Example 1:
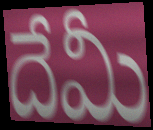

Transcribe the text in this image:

దేమీ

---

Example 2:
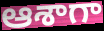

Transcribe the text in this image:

ఆశాగా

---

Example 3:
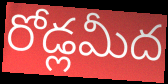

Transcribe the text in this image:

రోడ్లమీద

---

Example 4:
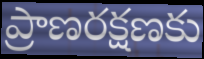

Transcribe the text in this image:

ప్రాణరక్షణకు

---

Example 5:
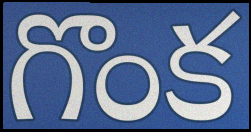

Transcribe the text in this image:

గొంక